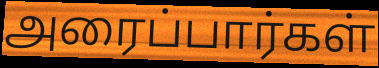
அரைப்பார்கள்